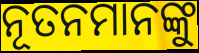
ନୂତନମାନଙ୍କୁ